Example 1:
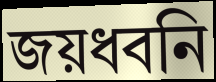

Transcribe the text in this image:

জয়ধবনি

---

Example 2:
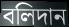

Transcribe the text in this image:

বলিদান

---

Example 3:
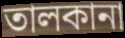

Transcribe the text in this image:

তালকানা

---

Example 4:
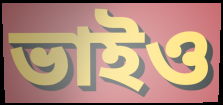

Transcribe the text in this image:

ভাইও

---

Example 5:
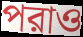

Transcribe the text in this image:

পরাও